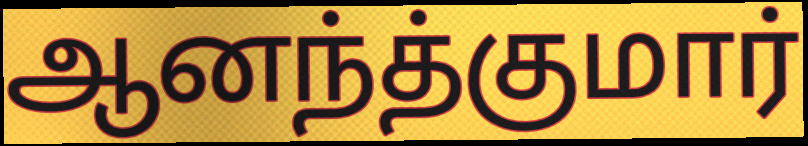
ஆனந்த்குமார்